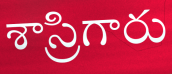
శాస్రిగారు